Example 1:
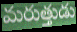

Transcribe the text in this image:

మరుత్తుడు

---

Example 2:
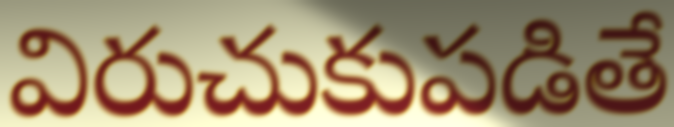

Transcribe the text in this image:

విరుచుకుపడితే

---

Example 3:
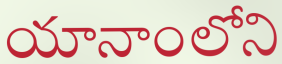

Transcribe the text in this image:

యానాంలోని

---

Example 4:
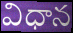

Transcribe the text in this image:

విధాన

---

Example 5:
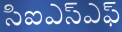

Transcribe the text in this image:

సిఐఎస్ఎఫ్